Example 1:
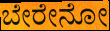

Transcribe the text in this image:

ಬೇರೇನೋ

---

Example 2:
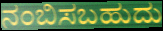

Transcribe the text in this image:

ನಂಬಿಸಬಹುದು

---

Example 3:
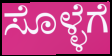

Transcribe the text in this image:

ಸೊಳ್ಳೆಗೆ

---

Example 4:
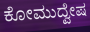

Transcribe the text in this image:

ಕೋಮುದ್ವೇಷ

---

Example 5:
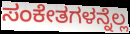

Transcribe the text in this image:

ಸಂಕೇತಗಳನ್ನೆಲ್ಲ